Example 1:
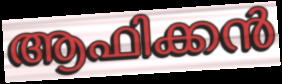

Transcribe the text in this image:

ആഫിക്കൻ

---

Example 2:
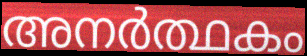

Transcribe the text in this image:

അനർത്ഥകം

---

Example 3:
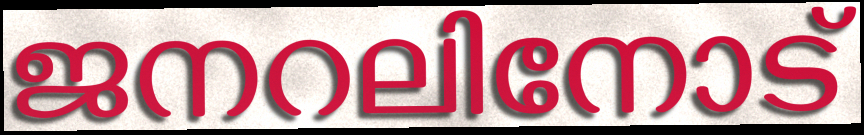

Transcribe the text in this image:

ജനറലിനോട്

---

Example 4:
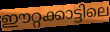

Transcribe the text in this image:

ഈറ്റക്കാട്ടിലെ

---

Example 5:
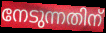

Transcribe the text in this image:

നേടുന്നതിന്